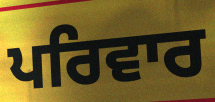
ਪਰਿਵਾਰ